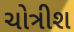
ચોત્રીશ